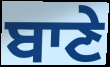
ਬਾਣੇ